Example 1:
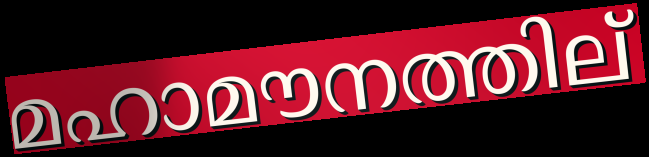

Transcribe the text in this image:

മഹാമൗനത്തില്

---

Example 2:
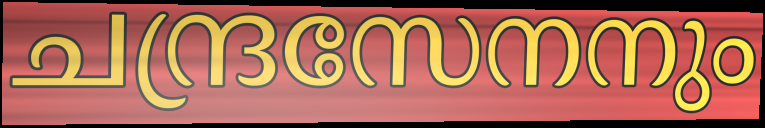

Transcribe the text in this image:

ചന്ദ്രസേനനും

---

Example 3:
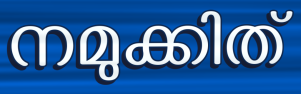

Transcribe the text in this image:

നമുക്കിത്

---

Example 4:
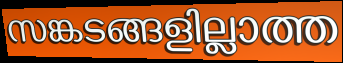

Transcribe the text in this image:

സങ്കടങ്ങളില്ലാത്ത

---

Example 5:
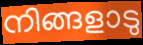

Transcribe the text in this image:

നിങ്ങളാടു